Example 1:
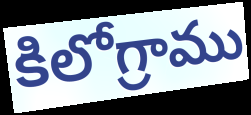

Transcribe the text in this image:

కిలోగ్రాము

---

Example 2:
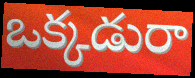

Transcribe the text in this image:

ఒక్కడురా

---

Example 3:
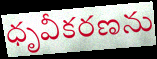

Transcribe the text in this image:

ధృవీకరణను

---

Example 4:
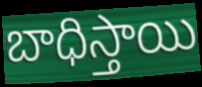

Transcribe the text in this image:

బాధిస్తాయి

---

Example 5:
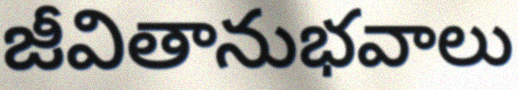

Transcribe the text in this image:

జీవితానుభవాలు